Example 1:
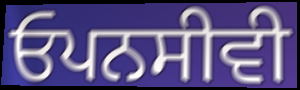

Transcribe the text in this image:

ਓਪਨਸੀਵੀ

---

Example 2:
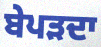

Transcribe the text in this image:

ਬੇਪੜਦਾ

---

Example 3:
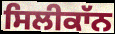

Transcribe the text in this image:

ਸਿਲੀਕਾੱਨ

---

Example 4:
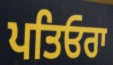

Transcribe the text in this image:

ਪਤਿਓਰਾ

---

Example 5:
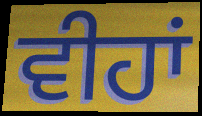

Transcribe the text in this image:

ਵੀਹਾਂ